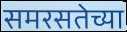
समरसतेच्या